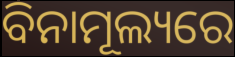
ବିନାମୂଲ୍ୟରେ